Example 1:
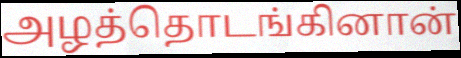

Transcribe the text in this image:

அழத்தொடங்கினான்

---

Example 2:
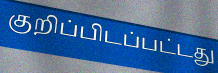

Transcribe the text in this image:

குறிப்பிடப்பட்டது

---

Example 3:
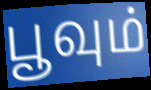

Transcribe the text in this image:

பூவும்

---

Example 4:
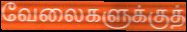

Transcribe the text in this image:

வேலைகளுக்குத்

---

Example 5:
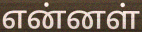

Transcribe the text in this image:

என்னள்